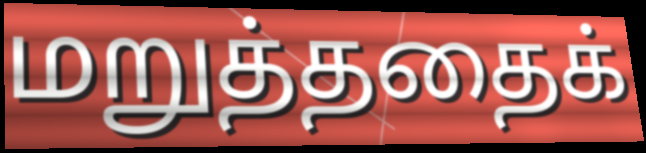
மறுத்ததைக்